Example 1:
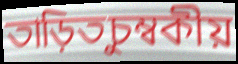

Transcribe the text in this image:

তাড়িতচুম্বকীয়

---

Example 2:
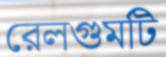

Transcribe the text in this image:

রেলগুমটি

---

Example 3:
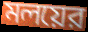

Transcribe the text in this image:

মলয়ের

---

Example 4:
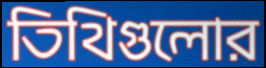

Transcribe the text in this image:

তিথিগুলোর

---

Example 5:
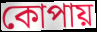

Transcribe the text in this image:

কোপায়